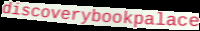
discoverybookpalace